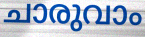
ചാരുവാം